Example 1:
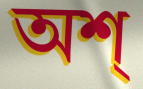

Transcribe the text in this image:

অশ্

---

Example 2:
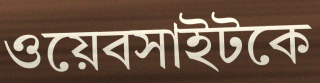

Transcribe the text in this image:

ওয়েবসাইটকে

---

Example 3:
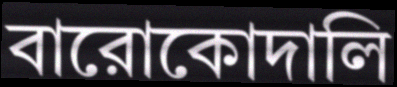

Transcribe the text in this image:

বারোকোদালি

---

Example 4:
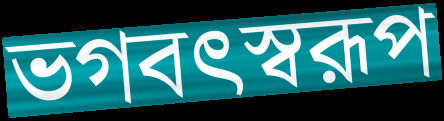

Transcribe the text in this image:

ভগবৎস্বরূপ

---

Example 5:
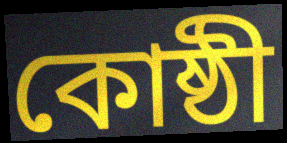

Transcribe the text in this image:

কোষ্ঠী